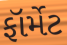
ફૉર્મેટ